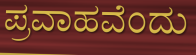
ಪ್ರವಾಹವೆಂದು